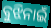
ବୁଝିନାଇଁ